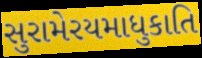
સુરામેરયમાધુકાતિ